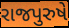
રાજપુરુષે